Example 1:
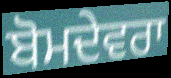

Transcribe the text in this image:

ਬੋਮਦੇਵਰਾ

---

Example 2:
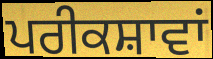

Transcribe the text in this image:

ਪਰੀਕਸ਼ਾਵਾਂ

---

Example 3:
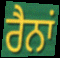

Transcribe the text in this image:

ਰੈਨਾਂ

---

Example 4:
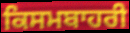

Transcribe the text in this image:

ਕਿਸਮਬਾਹਰੀ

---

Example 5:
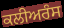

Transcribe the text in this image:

ਕਲੀਅਰੰਸ